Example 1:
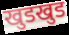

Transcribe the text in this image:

खुडखुड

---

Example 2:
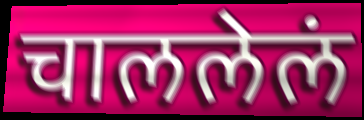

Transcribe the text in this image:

चाललेलं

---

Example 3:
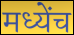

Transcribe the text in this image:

मध्येंच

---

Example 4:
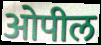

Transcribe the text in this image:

ओपील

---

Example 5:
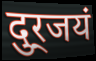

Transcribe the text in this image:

दुर्जयं